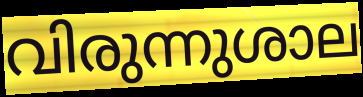
വിരുന്നുശാല